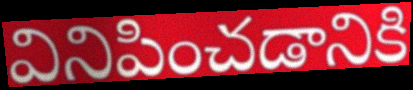
వినిపించడానికి